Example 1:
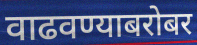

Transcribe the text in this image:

वाढवण्याबरोबर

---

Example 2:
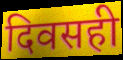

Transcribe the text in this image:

दिवसही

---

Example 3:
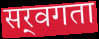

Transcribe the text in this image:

सर्वगता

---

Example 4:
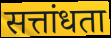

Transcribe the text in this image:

सत्तांधता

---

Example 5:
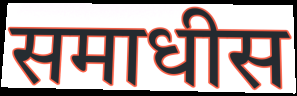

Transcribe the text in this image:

समाधीस